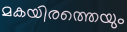
മകയിരത്തെയും